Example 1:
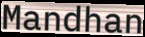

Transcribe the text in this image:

Mandhan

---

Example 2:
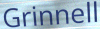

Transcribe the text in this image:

Grinnell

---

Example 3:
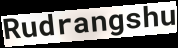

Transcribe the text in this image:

Rudrangshu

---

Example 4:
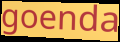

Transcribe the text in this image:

goenda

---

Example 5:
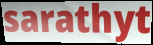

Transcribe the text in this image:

sarathyt